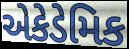
એકેડેમિક